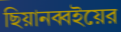
ছিয়ানব্বইয়ের